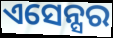
ଏସେନ୍ସର